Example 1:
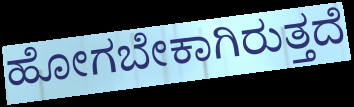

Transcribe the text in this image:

ಹೋಗಬೇಕಾಗಿರುತ್ತದೆ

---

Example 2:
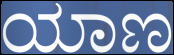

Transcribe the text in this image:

ಯಾಣ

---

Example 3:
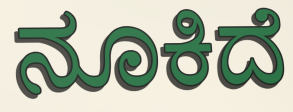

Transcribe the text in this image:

ನೂಕಿದೆ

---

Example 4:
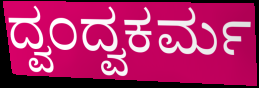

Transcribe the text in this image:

ದ್ವಂದ್ವಕರ್ಮ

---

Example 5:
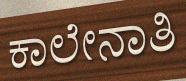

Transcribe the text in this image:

ಕಾಲೇನಾತಿ